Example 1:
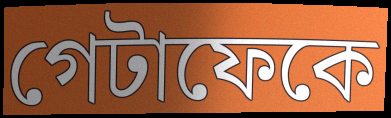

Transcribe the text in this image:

গেটাফেকে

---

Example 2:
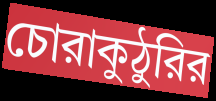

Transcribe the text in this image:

চোরাকুঠুরির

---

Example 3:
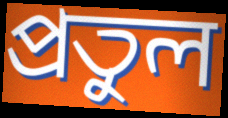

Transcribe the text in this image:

প্রতুল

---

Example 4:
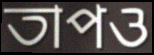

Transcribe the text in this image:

তাপও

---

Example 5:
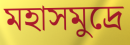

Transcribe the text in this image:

মহাসমুদ্রে